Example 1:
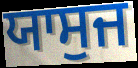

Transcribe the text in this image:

ਯਾਸੁਜ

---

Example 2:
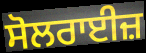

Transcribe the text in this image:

ਸੋਲਰਾਈਜ਼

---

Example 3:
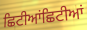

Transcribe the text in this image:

ਛਿਟੀਆਂਛਿਟੀਆਂ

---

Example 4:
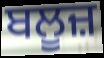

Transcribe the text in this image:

ਬਲੂਜ਼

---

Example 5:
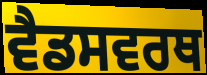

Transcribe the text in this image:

ਵੈਡਸਵਰਥ